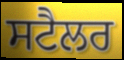
ਸਟੈਲਰ